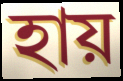
হায়